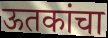
ऊतकांचा